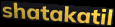
shatakatil